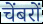
चेंबरों